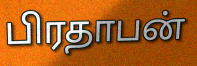
பிரதாபன்